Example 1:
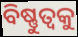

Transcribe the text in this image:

ବିଷ୍ଣୁତ୍ୱକୁ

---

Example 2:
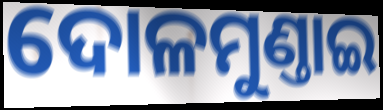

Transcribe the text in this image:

ଦୋଳମୁଣ୍ତାଇ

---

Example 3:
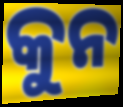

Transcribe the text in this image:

କୁନ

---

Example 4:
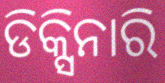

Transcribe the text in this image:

ଡିକ୍ସିନାରି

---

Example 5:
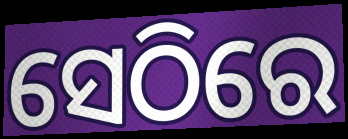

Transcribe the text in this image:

ସେଠିରେ